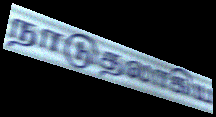
நாடுதலாகிய